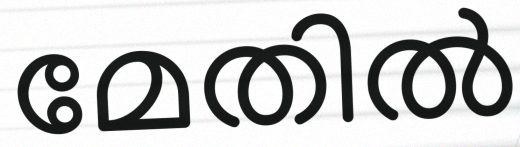
മേതിൽ